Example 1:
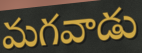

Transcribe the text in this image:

మగవాడు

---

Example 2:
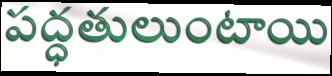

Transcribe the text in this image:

పద్ధతులుంటాయి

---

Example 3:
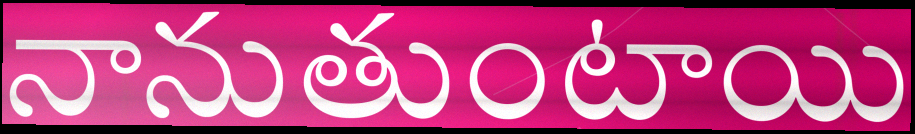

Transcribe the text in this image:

నానుతుంటాయి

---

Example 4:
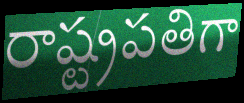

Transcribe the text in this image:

రాష్ట్రపతిగా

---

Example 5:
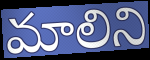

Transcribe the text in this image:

మాలిని